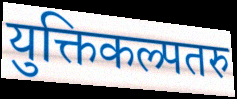
युक्तिकल्पतरु